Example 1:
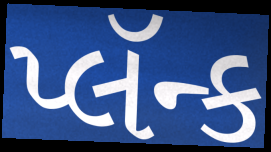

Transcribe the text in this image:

પ્લૅન્ક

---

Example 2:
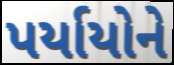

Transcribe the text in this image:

પર્યાયોને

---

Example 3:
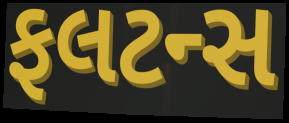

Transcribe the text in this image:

ફલટન્સ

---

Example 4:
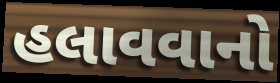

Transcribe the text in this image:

હલાવવાનો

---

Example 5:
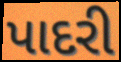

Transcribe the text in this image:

પાદરી